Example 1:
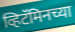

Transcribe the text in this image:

व्हिटॅमिनच्या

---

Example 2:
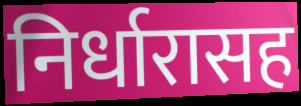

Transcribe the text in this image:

निर्धारासह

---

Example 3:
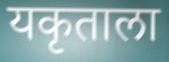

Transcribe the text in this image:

यकृताला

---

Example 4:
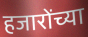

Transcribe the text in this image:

हजारोंच्या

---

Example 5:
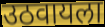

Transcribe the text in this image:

उठवायला